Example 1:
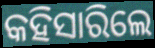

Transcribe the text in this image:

କହିସାରିଲେ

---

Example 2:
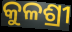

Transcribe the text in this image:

କୁଳଶ୍ରୀ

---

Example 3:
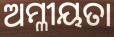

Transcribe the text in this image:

ଅମ୍ଳୀୟତା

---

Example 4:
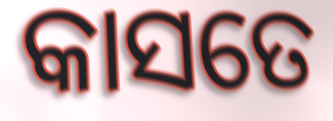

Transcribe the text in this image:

କାସତେ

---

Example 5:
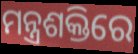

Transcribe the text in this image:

ମନ୍ତ୍ରଶକ୍ତିରେ